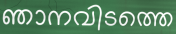
ഞാനവിടത്തെ